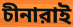
চীনারাই